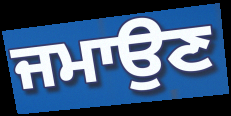
ਜਮਾਉਣ